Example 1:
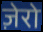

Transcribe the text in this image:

ज़ेरो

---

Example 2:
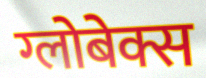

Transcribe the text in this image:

ग्लोबेक्स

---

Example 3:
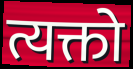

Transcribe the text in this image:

त्यक्तो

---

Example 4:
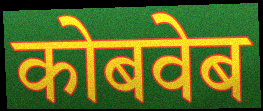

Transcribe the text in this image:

कोबवेब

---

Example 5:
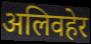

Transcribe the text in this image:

अलिवहेर